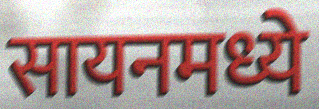
सायनमध्ये